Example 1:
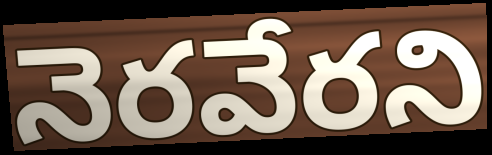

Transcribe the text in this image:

నెరవేరని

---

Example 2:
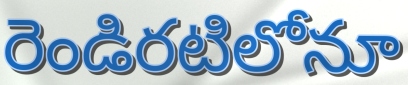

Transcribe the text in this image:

రెండిరటిలోనూ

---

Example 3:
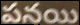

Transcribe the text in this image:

పనయి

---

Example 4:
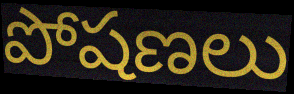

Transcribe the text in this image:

పోషణలు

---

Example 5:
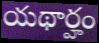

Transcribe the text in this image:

యథార్హం